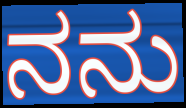
ನನು